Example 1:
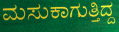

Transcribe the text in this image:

ಮಸುಕಾಗುತ್ತಿದ್ದ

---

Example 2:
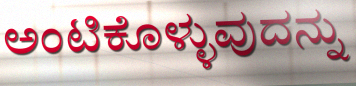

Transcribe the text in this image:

ಅಂಟಿಕೊಳ್ಳುವುದನ್ನು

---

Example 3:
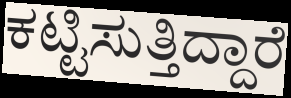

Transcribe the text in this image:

ಕಟ್ಟಿಸುತ್ತಿದ್ದಾರೆ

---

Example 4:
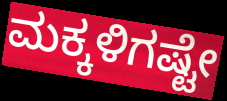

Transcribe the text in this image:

ಮಕ್ಕಳಿಗಷ್ಟೇ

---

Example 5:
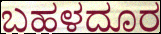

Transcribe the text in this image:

ಬಹಳದೂರ